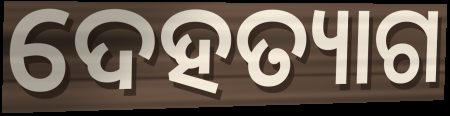
ଦେହତ୍ୟାଗ